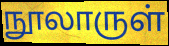
நூலாருள்